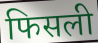
फिसली